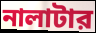
নালাটার